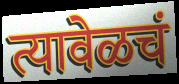
त्यावेळचं